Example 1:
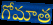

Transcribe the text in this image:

గోమాత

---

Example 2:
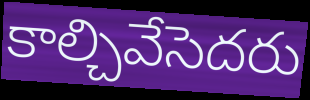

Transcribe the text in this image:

కాల్చివేసెదరు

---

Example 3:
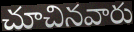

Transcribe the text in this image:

చూచినవారు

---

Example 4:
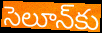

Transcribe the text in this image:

సెలూన్‌కు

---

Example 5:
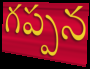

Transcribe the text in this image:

గప్పన